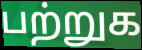
பற்றுக